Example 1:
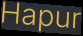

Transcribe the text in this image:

Hapur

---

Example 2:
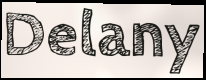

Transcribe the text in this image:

Delany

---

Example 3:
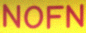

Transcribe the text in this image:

NOFN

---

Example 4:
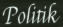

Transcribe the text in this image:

Politik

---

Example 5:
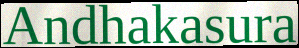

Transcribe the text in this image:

Andhakasura